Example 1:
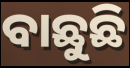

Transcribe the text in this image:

ବାଛୁଛି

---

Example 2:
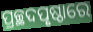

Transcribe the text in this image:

ପ୍ରଚ୍ଛଦପୃଷ୍ଠାରେ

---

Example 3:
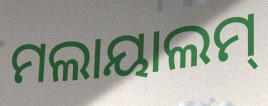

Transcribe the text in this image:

ମଲାୟାଲମ୍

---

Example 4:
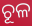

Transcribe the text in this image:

ଚୂଳ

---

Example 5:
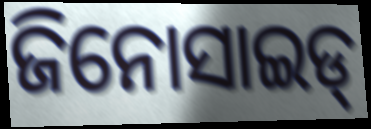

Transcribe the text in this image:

ଜିନୋସାଇଡ୍